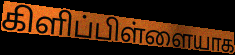
கிளிப்பிள்ளையாக